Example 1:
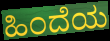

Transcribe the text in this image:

ಹಿಂದೆಯ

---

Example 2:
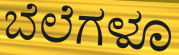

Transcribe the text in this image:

ಬೆಲೆಗಳೂ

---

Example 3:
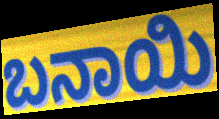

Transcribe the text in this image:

ಬನಾಯಿ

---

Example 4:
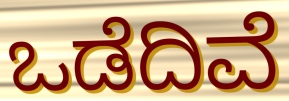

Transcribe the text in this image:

ಒಡೆದಿವೆ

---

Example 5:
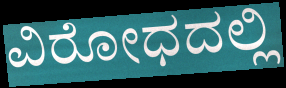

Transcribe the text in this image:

ವಿರೋಧದಲ್ಲಿ